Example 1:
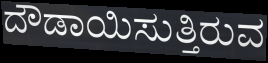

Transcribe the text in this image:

ದೌಡಾಯಿಸುತ್ತಿರುವ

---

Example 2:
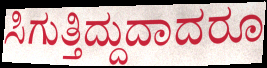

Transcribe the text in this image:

ಸಿಗುತ್ತಿದ್ದುದಾದರೂ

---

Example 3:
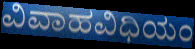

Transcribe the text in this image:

ವಿವಾಹವಿಧಿಯಂ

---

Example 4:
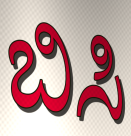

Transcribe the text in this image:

ಬಿಸಿ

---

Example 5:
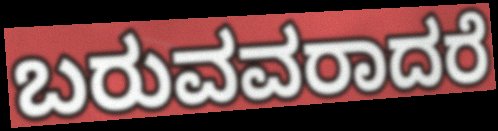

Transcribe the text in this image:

ಬರುವವರಾದರೆ